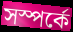
সস্পর্কে